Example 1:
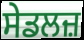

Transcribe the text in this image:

ਸੇਡਲਜ਼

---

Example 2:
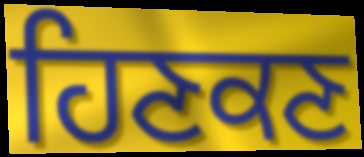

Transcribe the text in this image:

ਹਿਣਕਣ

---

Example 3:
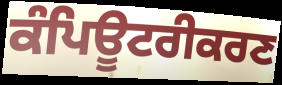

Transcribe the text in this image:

ਕੰਪਿਊਟਰੀਕਰਣ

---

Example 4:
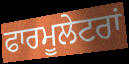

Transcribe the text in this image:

ਫਾਰਮੂਲੇਟਰਾਂ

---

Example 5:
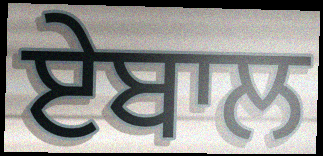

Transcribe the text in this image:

ਏਬਾਲ